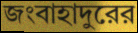
জংবাহাদুরের